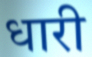
धारी